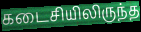
கடைசியிலிருந்த